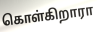
கொள்கிறாரா